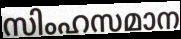
സിംഹസമാന